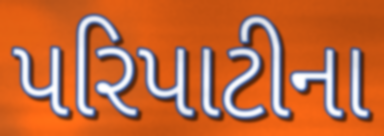
પરિપાટીના